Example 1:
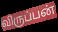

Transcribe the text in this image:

விருப்பன்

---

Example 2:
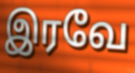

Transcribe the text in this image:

இரவே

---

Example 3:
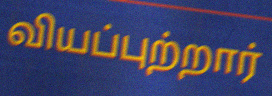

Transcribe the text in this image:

வியப்புற்றார்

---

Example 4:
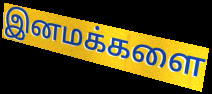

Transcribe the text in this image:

இனமக்களை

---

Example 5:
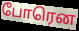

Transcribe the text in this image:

போரென